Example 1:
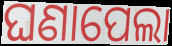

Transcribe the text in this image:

ଘଣାପେଲା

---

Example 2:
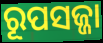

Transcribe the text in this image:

ରୂପସଜ୍ଜା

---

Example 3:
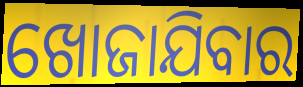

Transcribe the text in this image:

ଖୋଜାଯିବାର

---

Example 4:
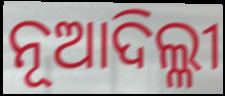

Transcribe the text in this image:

ନୂଆଦିଲ୍ଳୀ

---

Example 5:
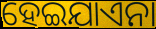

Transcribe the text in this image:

ହେଇଯାଏନା